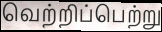
வெற்றிப்பெற்று